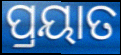
ପ୍ରୟାତ